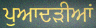
ਪੁਆਦੜੀਆਂ